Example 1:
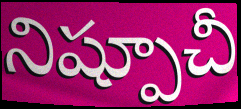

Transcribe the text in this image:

నిష్పూచీ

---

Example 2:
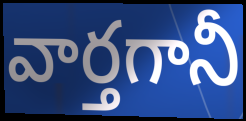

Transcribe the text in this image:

వార్తగానీ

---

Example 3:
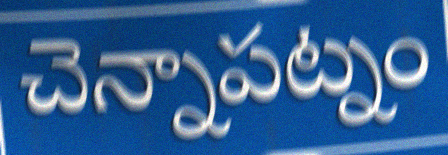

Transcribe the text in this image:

చెన్నాపట్నం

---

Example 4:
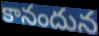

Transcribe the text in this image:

కానందున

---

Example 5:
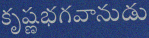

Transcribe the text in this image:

కృష్ణభగవానుడు